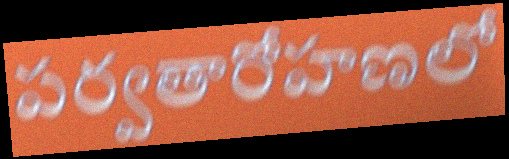
పర్వతారోహణలో